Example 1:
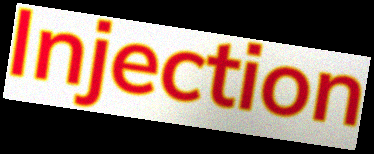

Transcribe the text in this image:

Injection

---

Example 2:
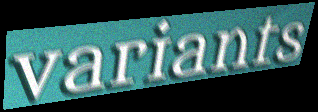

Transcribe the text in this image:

variants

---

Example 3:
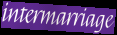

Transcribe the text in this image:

intermarriage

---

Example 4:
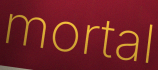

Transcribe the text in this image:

mortal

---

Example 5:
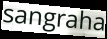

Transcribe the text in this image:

sangraha